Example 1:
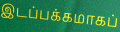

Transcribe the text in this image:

இடப்பக்கமாகப்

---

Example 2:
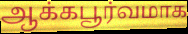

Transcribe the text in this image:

ஆக்கபூர்வமாக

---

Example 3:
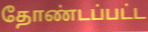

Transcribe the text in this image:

தோண்டப்பட்ட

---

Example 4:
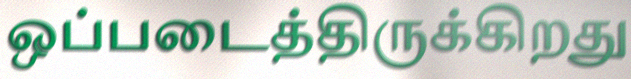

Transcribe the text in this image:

ஒப்படைத்திருக்கிறது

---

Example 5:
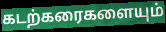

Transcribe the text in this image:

கடற்கரைகளையும்